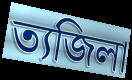
ত্যজিলা